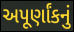
અપૂર્ણાંકનું